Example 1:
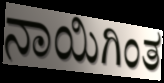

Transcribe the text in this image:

ನಾಯಿಗಿಂತ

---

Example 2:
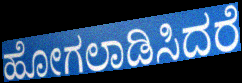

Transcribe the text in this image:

ಹೋಗಲಾಡಿಸಿದರೆ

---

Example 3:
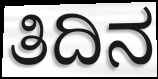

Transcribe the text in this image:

ತಿದಿನ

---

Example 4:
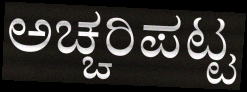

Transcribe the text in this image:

ಅಚ್ಚರಿಪಟ್ಟ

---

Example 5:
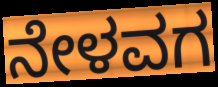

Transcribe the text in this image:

ನೇಳವಗ